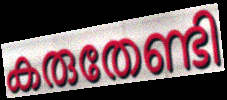
കരുതേണ്ടി